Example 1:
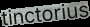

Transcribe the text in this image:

tinctorius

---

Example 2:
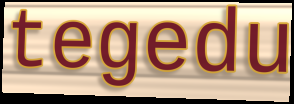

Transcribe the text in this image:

tegedu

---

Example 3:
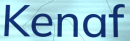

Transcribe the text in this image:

Kenaf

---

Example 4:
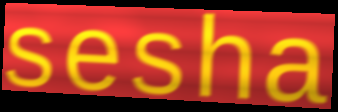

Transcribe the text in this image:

sesha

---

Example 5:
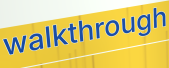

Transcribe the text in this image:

walkthrough